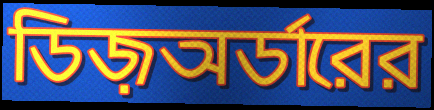
ডিজ়অর্ডারের